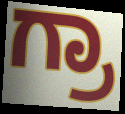
ಗ್ರಾ